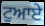
ਟੁਆਏ